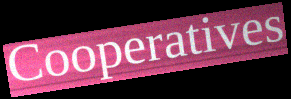
Cooperatives